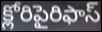
క్లోరిపైరిఫాస్